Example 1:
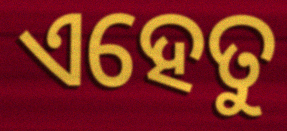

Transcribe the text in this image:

ଏହେତୁ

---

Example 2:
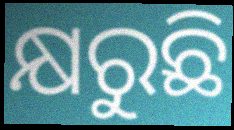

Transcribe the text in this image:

କ୍ଷରୁଛି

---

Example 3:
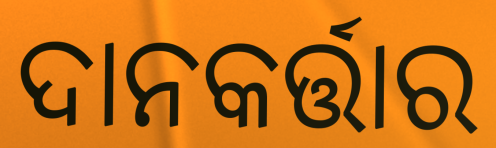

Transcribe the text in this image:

ଦାନକର୍ତ୍ତାର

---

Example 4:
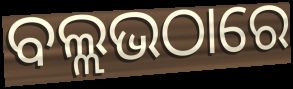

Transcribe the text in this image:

ବଲ୍ଲଭଠାରେ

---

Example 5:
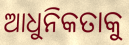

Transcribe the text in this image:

ଆଧୁନିକତାକୁ